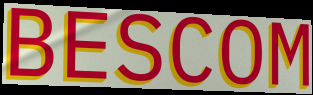
BESCOM